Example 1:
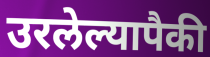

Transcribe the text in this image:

उरलेल्यापैकी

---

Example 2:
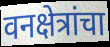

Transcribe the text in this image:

वनक्षेत्रांचा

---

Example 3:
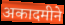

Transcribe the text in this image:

अकादमीने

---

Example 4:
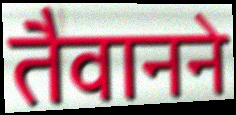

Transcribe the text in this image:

तैवानने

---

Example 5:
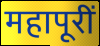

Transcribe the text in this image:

महापूरीं